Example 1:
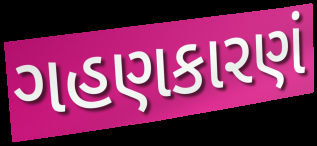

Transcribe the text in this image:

ગહણકારણં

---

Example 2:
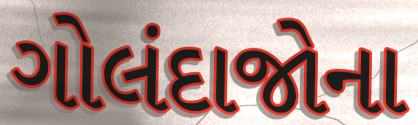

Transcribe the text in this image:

ગોલંદાજોના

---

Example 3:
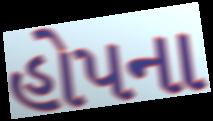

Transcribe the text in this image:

હોપના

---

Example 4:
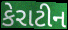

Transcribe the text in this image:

કેરાટીન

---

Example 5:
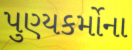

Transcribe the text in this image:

પુણ્યકર્મોના